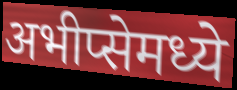
अभीप्सेमध्ये